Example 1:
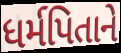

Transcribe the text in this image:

ધર્મપિતાને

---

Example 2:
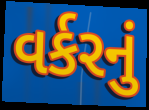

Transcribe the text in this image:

વર્કરનું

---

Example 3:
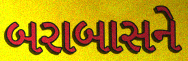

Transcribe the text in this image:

બરાબાસને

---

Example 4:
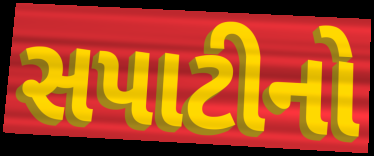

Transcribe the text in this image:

સપાટીનો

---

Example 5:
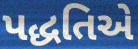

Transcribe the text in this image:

પદ્ધતિએ